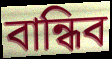
বান্ধিব